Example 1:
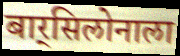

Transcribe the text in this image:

बार्सिलोनाला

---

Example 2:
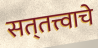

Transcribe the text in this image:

सत्‌तत्त्वाचे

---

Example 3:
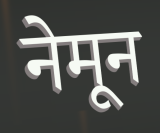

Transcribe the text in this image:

नेमून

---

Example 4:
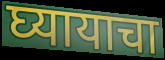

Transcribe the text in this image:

घ्यायाचा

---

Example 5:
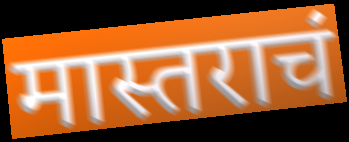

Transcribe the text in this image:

मास्तराचं